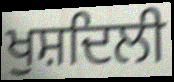
ਖੁਸ਼ਦਿਲੀ